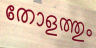
തോളത്തും